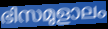
ഭിസമുളാലം